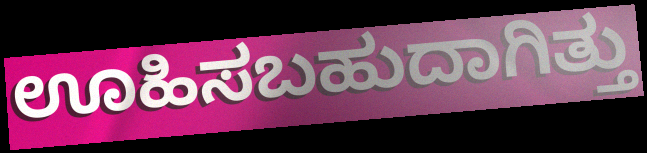
ಊಹಿಸಬಹುದಾಗಿತ್ತು